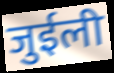
जुईली